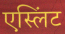
एस्लिंट